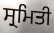
ਸ੍ਰਮਿਤੀ